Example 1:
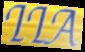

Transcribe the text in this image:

IIA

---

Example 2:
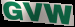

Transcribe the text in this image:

GVW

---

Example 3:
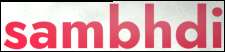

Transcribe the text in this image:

sambhdi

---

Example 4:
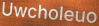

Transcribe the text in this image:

Uwcholeuo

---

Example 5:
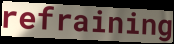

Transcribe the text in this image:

refraining